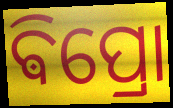
ଵିପ୍ରୋ